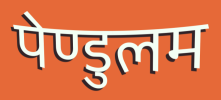
पेण्डुलम